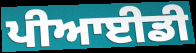
ਪੀਆਈਡੀ